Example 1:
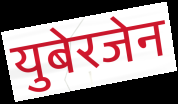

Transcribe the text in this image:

युबेरजेन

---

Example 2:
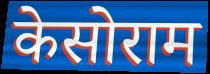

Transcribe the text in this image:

केसोराम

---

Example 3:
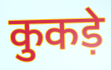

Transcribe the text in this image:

कुकड़े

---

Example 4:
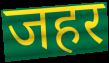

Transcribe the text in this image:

जहर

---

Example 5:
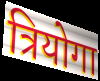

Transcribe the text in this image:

त्रियोगा